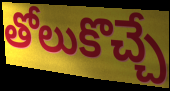
తోలుకొచ్చే